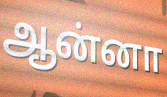
ஆன்னா